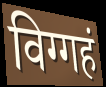
विग्गहं